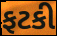
ફટકી